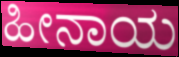
ಹೀನಾಯ